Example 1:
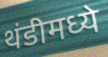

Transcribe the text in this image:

थंडीमध्ये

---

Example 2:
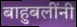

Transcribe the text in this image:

बाहुबलींनी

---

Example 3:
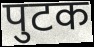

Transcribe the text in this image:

पुटक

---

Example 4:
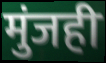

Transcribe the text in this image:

मुंजही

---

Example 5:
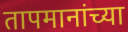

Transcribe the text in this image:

तापमानांच्या